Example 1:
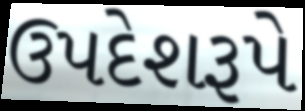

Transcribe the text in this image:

ઉપદેશરૂપે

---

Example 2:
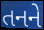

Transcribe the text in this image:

તનને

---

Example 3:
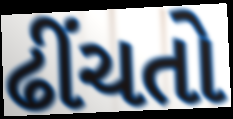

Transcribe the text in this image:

ઢીંચતો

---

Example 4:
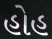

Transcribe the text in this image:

હોહ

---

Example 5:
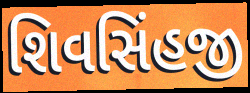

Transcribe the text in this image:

શિવસિંહજી